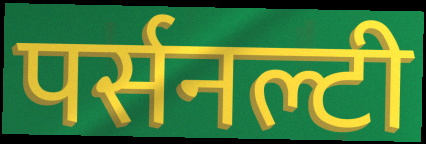
पर्सनल्टी